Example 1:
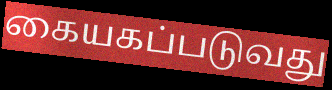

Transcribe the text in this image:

கையகப்படுவது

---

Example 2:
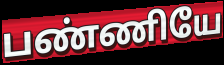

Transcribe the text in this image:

பண்ணியே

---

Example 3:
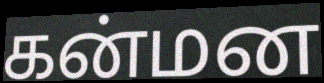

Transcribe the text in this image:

கன்மன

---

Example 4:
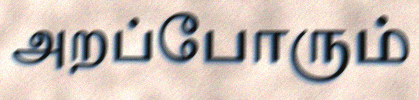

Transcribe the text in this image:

அறப்போரும்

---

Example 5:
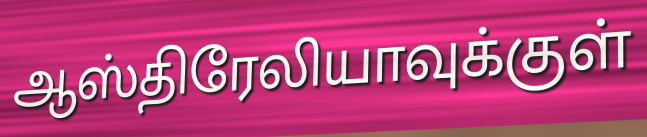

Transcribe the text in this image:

ஆஸ்திரேலியாவுக்குள்